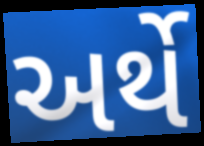
અર્થે